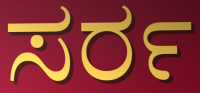
ಸರ್ರ